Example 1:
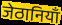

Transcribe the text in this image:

जेठानियाँ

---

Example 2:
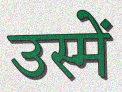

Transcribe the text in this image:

उस्में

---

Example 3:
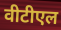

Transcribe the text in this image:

वीटीएल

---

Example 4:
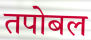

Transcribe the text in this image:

तपोबल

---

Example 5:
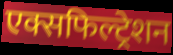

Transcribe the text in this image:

एक्सफिल्ट्रेशन